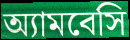
অ্যামবেসি